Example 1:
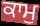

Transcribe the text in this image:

ਕਾਮੁ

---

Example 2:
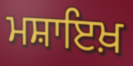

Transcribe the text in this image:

ਮਸ਼ਾਇਖ਼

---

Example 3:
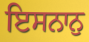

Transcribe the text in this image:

ਇਸਨਾਨੁ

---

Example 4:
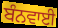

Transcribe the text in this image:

ਬੰਨਵਾਈ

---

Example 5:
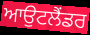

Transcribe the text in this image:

ਆਉਟਲੈਂਡਰ